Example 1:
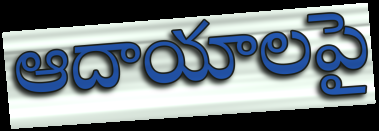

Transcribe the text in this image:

ఆదాయాలపై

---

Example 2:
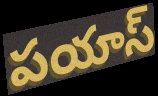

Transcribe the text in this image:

పయాస్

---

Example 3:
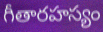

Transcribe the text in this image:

గీతారహస్యం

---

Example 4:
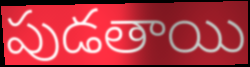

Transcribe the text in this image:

పుడతాయి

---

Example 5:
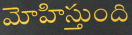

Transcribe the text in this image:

మోహిస్తుంది